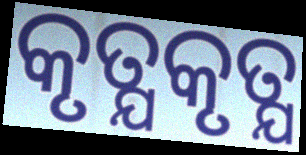
କୃତ୍ଯକୃତ୍ଯ